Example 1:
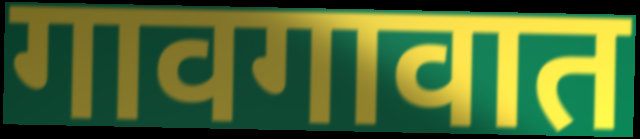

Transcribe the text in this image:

गावगावात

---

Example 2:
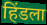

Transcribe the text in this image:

हिंडला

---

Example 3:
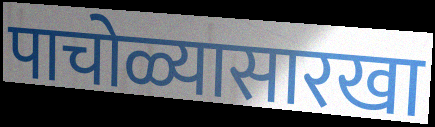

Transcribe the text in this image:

पाचोळ्यासारखा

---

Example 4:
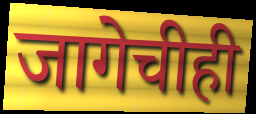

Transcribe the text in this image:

जागेचीही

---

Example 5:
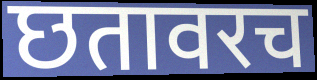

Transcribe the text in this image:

छतावरच